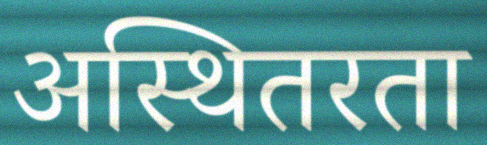
अस्थितरता